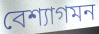
বেশ্যাগমন